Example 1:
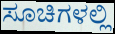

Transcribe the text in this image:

ಸೂಚಿಗಳಲ್ಲಿ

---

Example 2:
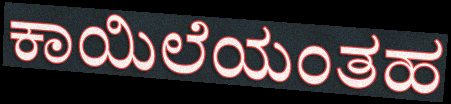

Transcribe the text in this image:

ಕಾಯಿಲೆಯಂತಹ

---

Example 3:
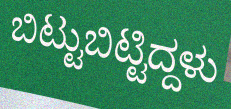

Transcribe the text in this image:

ಬಿಟ್ಟುಬಿಟ್ಟಿದ್ದಳು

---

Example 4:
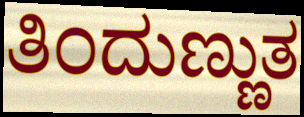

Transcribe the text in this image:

ತಿಂದುಣ್ಣುತ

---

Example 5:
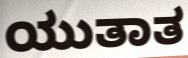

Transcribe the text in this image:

ಯುತಾತ